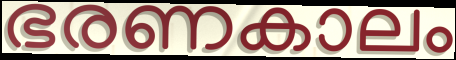
ഭരണകാലം